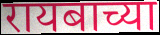
रायबाच्या